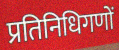
प्रतिनिधिगणों